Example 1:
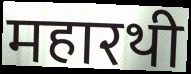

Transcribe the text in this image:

महारथी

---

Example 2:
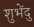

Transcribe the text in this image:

शुभेंदु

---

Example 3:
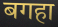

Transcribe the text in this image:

बगहा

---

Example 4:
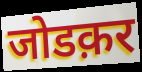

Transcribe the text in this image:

जोडक़र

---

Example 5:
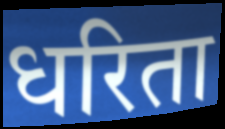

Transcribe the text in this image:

धरिता